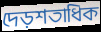
দেড়শতাধিক